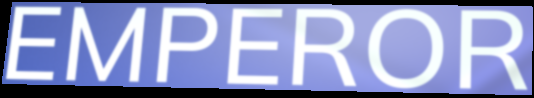
EMPEROR